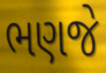
ભણજે